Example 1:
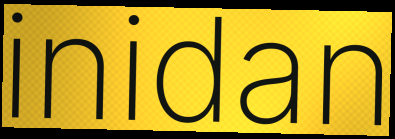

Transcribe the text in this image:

inidan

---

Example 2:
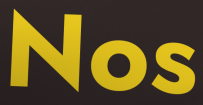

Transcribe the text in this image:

Nos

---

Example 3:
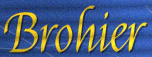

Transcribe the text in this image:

Brohier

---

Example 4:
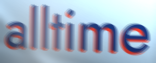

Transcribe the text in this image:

alltime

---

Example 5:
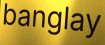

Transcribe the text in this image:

banglay